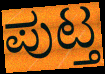
ಪುಟ್ತ